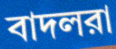
বাদলরা